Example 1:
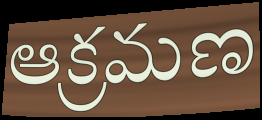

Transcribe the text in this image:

ఆక్రమణ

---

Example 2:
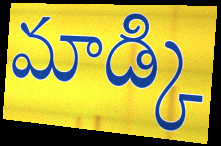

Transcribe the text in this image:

మాడ్కి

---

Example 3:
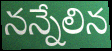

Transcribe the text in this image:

నన్నేలిన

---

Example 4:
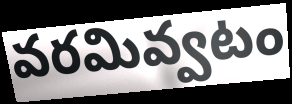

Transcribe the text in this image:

వరమివ్వటం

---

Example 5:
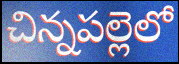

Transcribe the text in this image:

చిన్నపల్లెలో